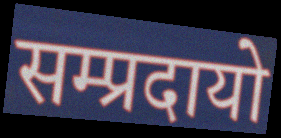
सम्प्रदायो